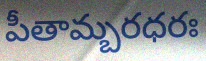
పీతామ్బరధరః